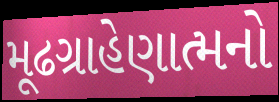
મૂઢગ્રાહેણાત્મનો